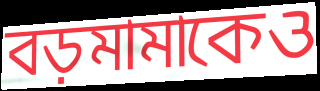
বড়মামাকেও